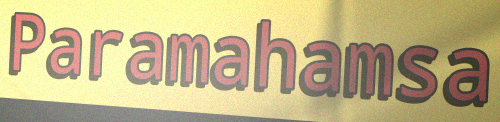
Paramahamsa